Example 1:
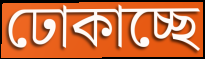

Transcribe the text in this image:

ঢোকাচ্ছে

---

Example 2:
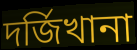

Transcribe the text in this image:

দর্জিখানা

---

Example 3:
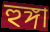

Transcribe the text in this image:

হুঙ্গা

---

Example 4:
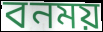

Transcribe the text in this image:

বনময়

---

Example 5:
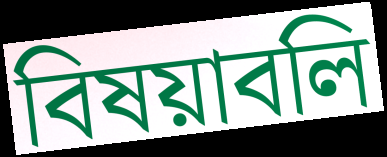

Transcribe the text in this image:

বিষয়াবলি